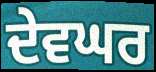
ਦੇਵਘਰ